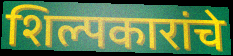
शिल्पकारांचे